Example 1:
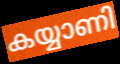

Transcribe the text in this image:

കയ്യാണി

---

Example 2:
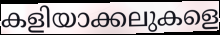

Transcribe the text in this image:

കളിയാക്കലുകളെ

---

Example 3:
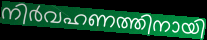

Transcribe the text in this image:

നിർവഹണത്തിനായി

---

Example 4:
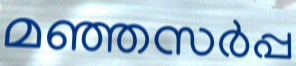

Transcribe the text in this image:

മഞ്ഞസർപ്പ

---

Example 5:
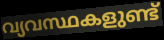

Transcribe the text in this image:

വ്യവസ്ഥകളുണ്ട്